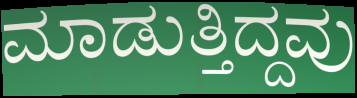
ಮಾಡುತ್ತಿದ್ದವು